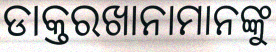
ଡାକ୍ତରଖାନାମାନଙ୍କୁ